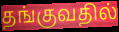
தங்குவதில்